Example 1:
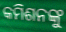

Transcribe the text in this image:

କମିଶନଙ୍କୁ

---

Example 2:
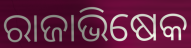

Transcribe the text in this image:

ରାଜାଭିଷେକ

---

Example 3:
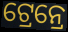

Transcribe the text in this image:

ଟ୍ରେନ୍ରେ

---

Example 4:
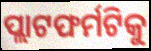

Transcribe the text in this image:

ପ୍ଲାଟଫର୍ମଟିକୁ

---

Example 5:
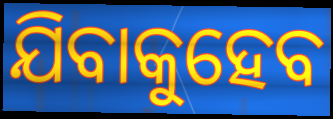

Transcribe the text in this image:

ଯିବାକୁହେବ